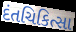
દંતચિકિત્સા